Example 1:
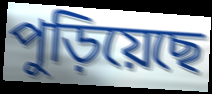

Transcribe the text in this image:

পুড়িয়েছে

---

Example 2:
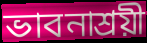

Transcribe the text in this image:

ভাবনাশ্রয়ী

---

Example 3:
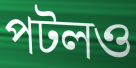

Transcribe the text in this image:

পটলও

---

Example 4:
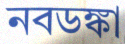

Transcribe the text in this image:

নবডঙ্কা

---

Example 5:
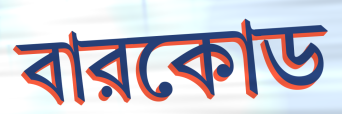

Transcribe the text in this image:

বারকোড